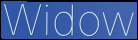
Widow